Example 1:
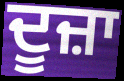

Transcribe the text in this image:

ਦੂਜ਼ਾ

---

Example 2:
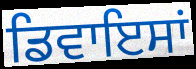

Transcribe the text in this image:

ਡਿਵਾਇਸਾਂ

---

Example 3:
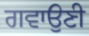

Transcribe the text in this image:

ਗਵਾਉਣੀ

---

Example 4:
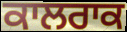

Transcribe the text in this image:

ਕਾਲਰਾਕ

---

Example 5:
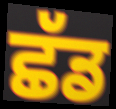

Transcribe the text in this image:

ਛੱਡ